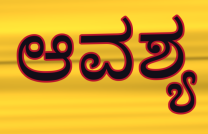
ಆವಶ್ಯ